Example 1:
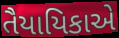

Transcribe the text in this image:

તૈયાયિકાએ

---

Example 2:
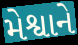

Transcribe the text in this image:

મેશ્વાને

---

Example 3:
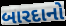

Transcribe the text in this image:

બારદાનો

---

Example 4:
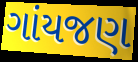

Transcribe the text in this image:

ગાંયજણ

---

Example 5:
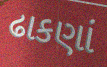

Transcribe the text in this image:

ઢાકણાં